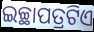
ଇଚ୍ଛାପତ୍ରଟିଏ